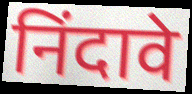
निंदावे